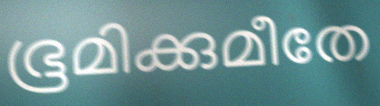
ഭൂമിക്കുമീതേ